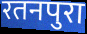
रतनपुरा